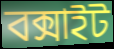
বক্সাইট